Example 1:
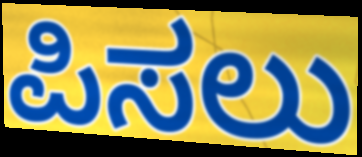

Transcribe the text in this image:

ಪಿಸಲು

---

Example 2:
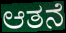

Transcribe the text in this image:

ಆತನೆ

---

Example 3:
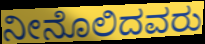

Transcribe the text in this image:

ನೀನೊಲಿದವರು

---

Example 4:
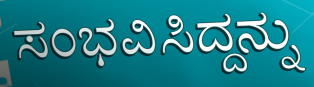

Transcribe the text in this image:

ಸಂಭವಿಸಿದ್ದನ್ನು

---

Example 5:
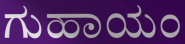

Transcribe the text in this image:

ಗುಹಾಯಂ